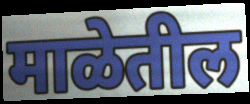
माळेतील